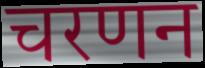
चरणन